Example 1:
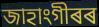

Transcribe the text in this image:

জাহাংগীৰৰ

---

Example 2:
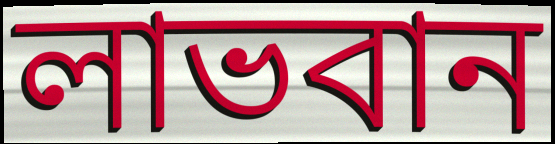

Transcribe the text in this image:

লাভবান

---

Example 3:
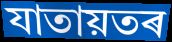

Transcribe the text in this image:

যাতায়তৰ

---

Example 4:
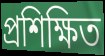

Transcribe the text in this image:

প্ৰশিক্ষিত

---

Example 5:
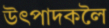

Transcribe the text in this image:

উৎপাদকলৈ